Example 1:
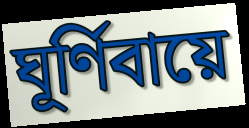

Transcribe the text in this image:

ঘূর্ণিবায়ে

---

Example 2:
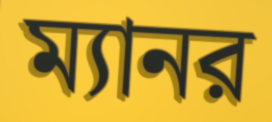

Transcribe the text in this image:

ম্যানর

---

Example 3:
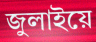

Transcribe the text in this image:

জুলাইয়ে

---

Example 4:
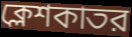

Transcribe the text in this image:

ক্লেশকাতর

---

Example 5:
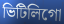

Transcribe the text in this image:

ভিটিলিগো